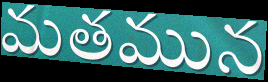
మతమున